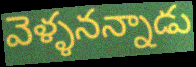
వెళ్ళనన్నాడు